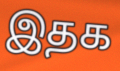
இதக